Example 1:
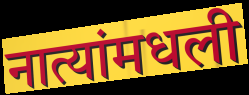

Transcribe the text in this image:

नात्यांमधली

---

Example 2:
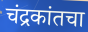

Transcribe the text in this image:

चंद्रकांतचा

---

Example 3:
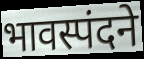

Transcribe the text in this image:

भावस्पंदने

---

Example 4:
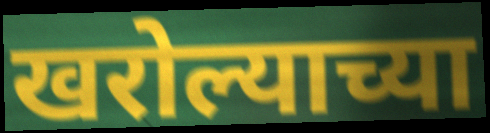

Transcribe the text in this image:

खरोल्याच्या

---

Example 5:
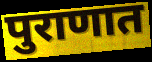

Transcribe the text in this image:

पुराणात